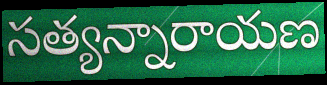
సత్యన్నారాయణ